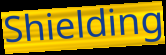
Shielding